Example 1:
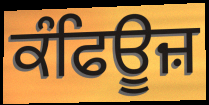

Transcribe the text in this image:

ਕੰਫਿਊਜ਼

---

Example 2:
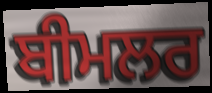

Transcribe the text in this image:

ਬੀਮਲਰ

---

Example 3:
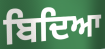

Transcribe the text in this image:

ਬਿਦਿਆ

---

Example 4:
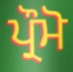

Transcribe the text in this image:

ਪ੍ਰੌਮੋ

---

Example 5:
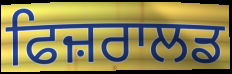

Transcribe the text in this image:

ਫਿਜ਼ਰਾਲਡ